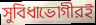
সুবিধাভোগীরই